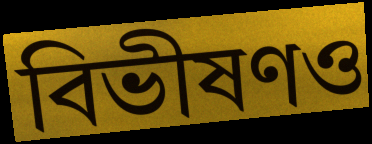
বিভীষণও